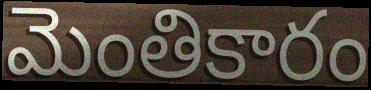
మెంతికారం